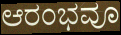
ಆರಂಭವೂ